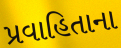
પ્રવાહિતાના